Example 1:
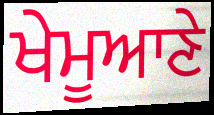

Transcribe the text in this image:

ਖੇਮੂਆਣੇ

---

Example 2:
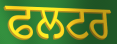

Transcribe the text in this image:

ਫਲਟਰ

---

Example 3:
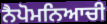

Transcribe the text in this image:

ਨੈਪੋਮਨਿਆਚੀ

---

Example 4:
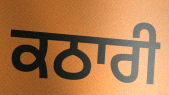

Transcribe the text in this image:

ਕਠਾਰੀ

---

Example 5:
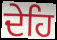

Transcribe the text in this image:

ਦੇਹਿ